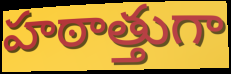
హఠాత్తుగా